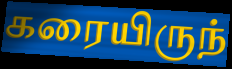
கரையிருந்